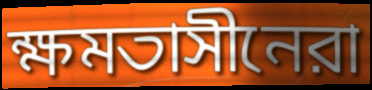
ক্ষমতাসীনেরা